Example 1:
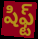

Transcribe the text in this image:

షిఫ్ట్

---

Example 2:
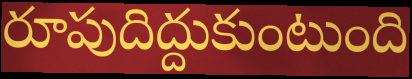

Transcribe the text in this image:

రూపుదిద్దుకుంటుంది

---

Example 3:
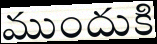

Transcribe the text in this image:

ముందుకి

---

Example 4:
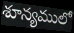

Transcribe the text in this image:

శూన్యములో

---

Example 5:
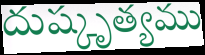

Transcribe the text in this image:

దుష్కృత్యము